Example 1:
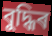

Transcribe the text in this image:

বুদ্ধিৰ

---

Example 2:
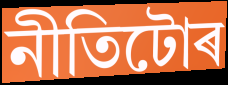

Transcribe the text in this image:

নীতিটোৰ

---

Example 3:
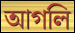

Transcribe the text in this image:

আগলি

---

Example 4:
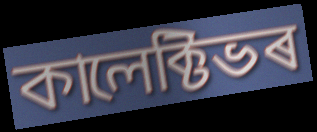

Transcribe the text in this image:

কালেক্টিভৰ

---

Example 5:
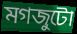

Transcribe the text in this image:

মগজুটো